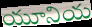
యూనియ